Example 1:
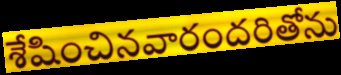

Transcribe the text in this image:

శేషించినవారందరితోను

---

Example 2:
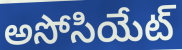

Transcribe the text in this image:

అసోసియేట్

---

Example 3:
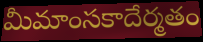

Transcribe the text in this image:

మీమాంసకాదేర్మతం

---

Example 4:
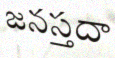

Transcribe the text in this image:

జనస్తదా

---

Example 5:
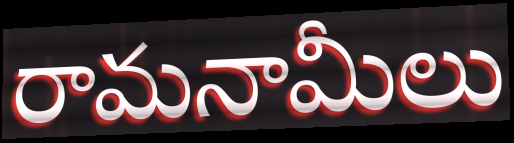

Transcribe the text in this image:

రామనామీలు